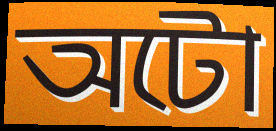
অটো